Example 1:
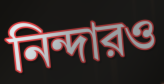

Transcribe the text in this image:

নিন্দারও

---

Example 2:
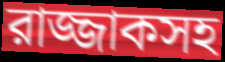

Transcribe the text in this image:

রাজ্জাকসহ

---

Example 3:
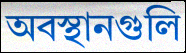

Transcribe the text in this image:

অবস্থানগুলি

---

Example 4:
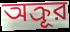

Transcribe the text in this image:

অক্রূর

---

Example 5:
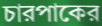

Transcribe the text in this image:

চারপাকের